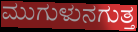
ಮುಗುಳುನಗುತ್ತ